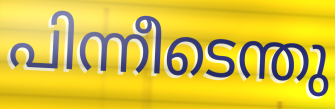
പിന്നീടെന്തു